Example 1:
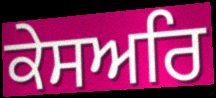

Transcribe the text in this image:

ਕੇਸਅਰਿ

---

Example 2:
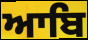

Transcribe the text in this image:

ਆਬਿ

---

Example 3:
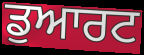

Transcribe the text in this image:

ਡੁਆਰਟ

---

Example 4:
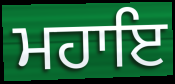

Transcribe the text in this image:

ਮਹਾਇ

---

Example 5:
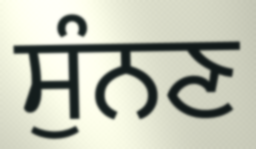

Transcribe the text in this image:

ਸੁੰਨਣ